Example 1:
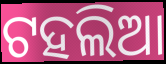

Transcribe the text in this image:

ଟହଲିଆ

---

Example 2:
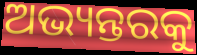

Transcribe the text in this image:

ଅଭ୍ୟନ୍ତରକୁ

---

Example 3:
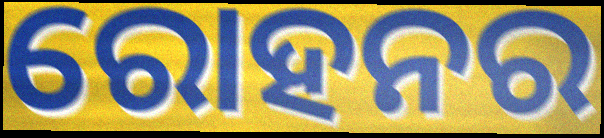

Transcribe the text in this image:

ରୋହନର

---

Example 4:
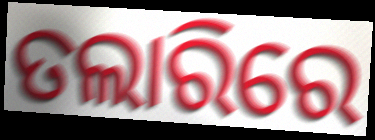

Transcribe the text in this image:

ତଲାରିରେ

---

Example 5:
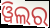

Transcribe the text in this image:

ୱିଲର